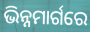
ଭିନ୍ନମାର୍ଗରେ